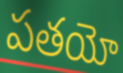
పతయో